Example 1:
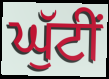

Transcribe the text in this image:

ਘੁੱਟੀਂ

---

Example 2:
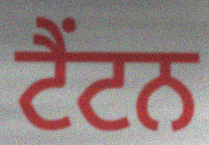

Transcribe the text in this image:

ਟੈਂਟਨ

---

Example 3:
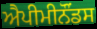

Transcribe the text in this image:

ਐਪੀਮੀਨੌਂਡਸ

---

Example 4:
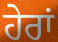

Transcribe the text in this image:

ਹੇਰਾਂ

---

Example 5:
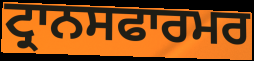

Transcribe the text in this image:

ਟ੍ਰਾਨਸਫਾਰਮਰ